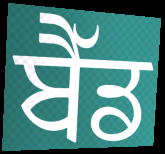
ਬੈੱਡ